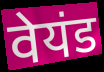
वेयंड